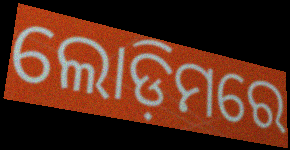
ଲୋଡ଼ିମରେ